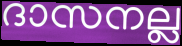
ദാസനല്ല